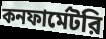
কনফার্মেটরি